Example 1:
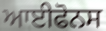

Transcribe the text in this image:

ਆਈਫੋਨਸ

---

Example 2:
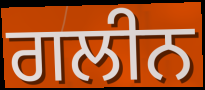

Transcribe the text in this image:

ਗਲੀਨ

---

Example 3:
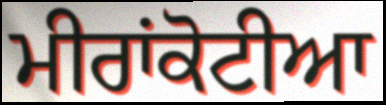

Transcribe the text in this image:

ਮੀਰਾਂਕੋਟੀਆ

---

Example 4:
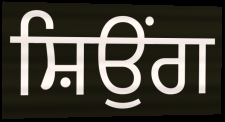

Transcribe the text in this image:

ਸ਼ਿਉਂਗ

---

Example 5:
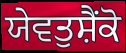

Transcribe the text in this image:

ਯੇਵਤੁਸ਼ੈਂਕੋ